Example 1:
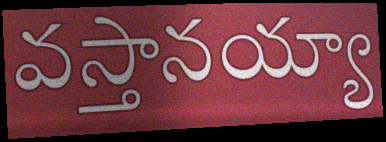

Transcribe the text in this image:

వస్తానయ్యా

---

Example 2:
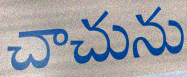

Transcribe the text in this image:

చాచును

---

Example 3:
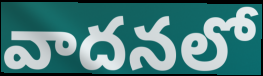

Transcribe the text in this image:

వాదనలో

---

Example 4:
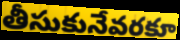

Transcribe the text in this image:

తీసుకునేవరకూ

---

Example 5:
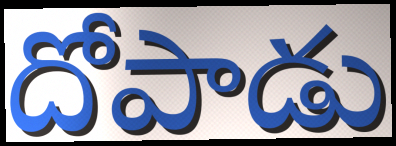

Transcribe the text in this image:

దోపాడు